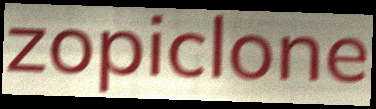
zopiclone